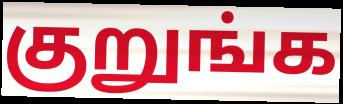
குறுங்க